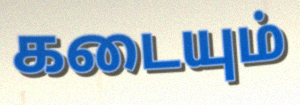
கடையும்